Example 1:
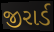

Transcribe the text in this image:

જીરાર્ડ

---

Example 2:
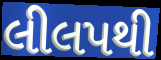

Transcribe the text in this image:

લીલપથી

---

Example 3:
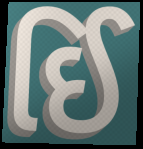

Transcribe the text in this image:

ઈિ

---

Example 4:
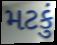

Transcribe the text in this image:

મટકું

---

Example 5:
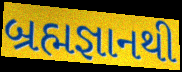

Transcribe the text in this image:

બ્રહ્મજ્ઞાનથી